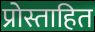
प्रोस्ताहित